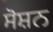
ਸੋਸ਼ਨ